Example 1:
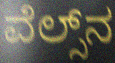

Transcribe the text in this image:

ವೆಲ್ಸ್‌ನ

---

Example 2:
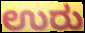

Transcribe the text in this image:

ಉರು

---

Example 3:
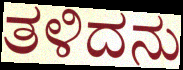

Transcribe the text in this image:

ತಳಿದನು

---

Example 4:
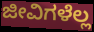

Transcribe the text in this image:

ಜೀವಿಗಳೆಲ್ಲ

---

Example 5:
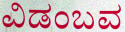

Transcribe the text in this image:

ವಿಡಂಬವ